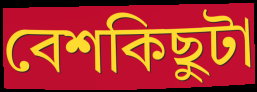
বেশকিছুটা